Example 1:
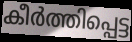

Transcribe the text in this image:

കീർത്തിപ്പെട്ട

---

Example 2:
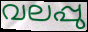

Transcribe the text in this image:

വലപ്പു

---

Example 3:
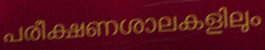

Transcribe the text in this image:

പരീക്ഷണശാലകളിലും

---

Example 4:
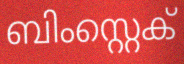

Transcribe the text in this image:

ബിംസ്റ്റെക്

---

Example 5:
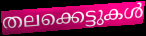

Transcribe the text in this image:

തലക്കെട്ടുകൾ